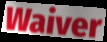
Waiver